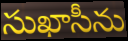
సుఖాసీను